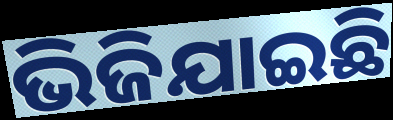
ଭିଜିଯାଇଛି